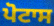
ਪੋਟਾਸ